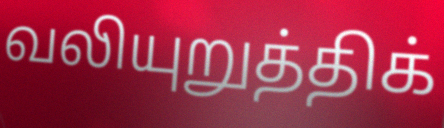
வலியுறுத்திக்